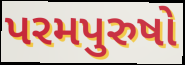
પરમપુરુષો